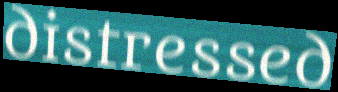
distressed